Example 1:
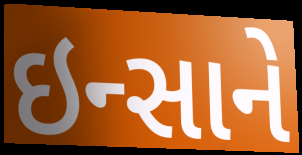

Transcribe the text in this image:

ઇન્સાને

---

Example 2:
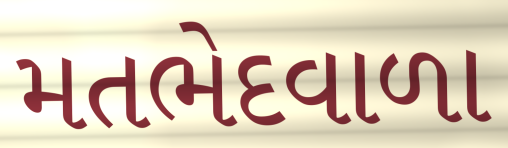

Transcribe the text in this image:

મતભેદવાળા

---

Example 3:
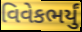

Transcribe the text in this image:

વિવેકભર્યું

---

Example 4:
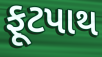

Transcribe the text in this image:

ફૂટપાથ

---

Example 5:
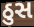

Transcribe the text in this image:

ઠુસ